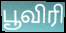
பூவிரி